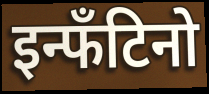
इन्फँटिनो